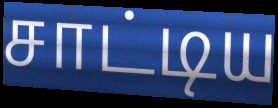
சாட்டிய